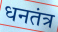
धनतंत्र